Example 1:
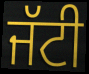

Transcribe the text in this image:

ਜੱਟੀ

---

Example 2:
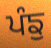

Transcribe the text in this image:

ਪੰਙੁ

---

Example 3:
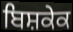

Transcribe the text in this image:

ਬਿਸ਼ਕੇਕ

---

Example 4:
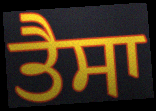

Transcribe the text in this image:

ਤੈਸਾ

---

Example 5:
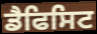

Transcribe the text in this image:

ਡੈਫਿਸਿਟ